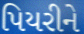
પિયરીને